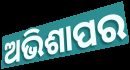
ଅଭିଶାପର